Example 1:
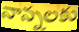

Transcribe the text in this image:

నాన్నలకు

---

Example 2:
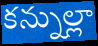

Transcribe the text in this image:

కన్నుల్లా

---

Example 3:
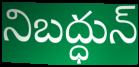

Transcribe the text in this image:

నిబద్ధున్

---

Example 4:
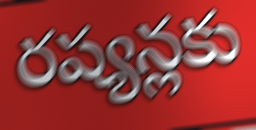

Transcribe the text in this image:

రష్యన్లకు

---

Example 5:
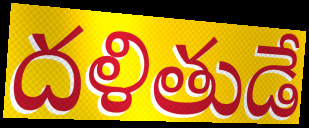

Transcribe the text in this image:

దళితుడే